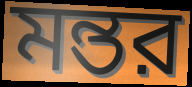
মন্তর